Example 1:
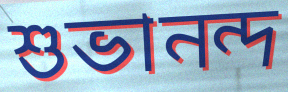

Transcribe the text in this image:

শুভানন্দ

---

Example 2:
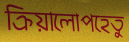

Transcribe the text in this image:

ক্রিয়ালোপহেতু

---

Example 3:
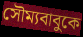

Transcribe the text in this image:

সৌম্যবাবুকে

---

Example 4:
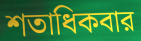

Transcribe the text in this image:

শতাধিকবার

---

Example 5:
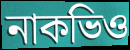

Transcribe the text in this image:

নাকভিও